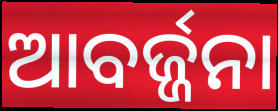
ଆବର୍ଜ୍ଜନା